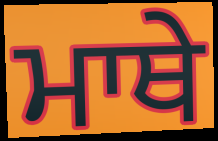
ਮਾਥੇ